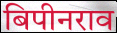
बिपीनराव